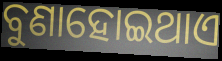
ବୁଣାହୋଇଥାଏ